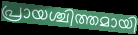
പ്രായശ്ചിത്തമായി